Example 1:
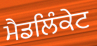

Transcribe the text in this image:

ਮੈਡਲਿੰਕੇਟ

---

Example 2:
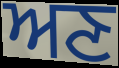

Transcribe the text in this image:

ਅਣ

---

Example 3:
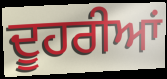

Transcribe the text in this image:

ਦੂਹਰੀਆਂ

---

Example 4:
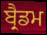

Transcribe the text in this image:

ਬ੍ਰੈਡਮ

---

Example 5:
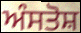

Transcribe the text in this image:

ਅੰਸਤੋਸ਼